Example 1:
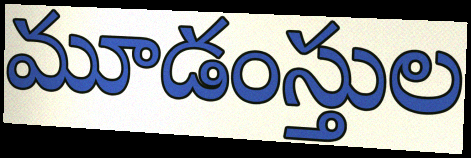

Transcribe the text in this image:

మూడంస్తుల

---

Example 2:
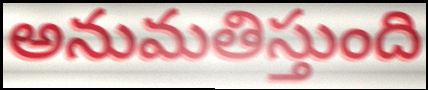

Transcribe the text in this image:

అనుమతిస్తుంది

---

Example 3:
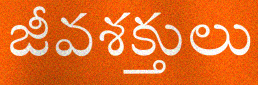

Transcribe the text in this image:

జీవశక్తులు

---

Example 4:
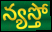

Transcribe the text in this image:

న్యస్తో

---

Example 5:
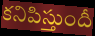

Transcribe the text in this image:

కనిపిస్తుందీ